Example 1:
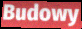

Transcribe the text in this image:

Budowy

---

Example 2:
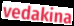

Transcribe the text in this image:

vedakina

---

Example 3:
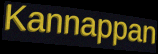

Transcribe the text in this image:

Kannappan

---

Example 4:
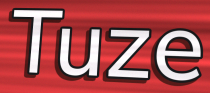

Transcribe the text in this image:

Tuze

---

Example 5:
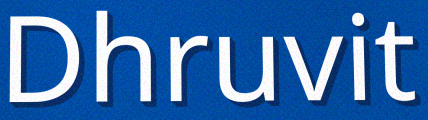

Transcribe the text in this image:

Dhruvit